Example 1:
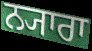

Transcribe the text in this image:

ਨ੍ਯਾਰਾ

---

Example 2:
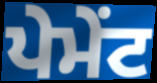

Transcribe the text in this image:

ਪੇਮੇਂਟ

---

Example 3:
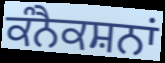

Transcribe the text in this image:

ਕੰਨੈਕਸ਼ਨਾਂ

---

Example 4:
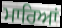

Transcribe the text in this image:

ਮਾਰਿਆਂ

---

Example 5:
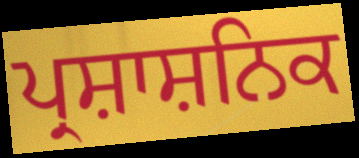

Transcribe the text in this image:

ਪ੍ਰਸ਼ਾਸ਼ਨਿਕ